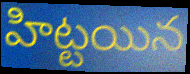
హిట్టయిన